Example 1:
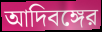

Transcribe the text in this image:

আদিবঙ্গের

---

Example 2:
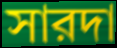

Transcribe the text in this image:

সারদা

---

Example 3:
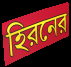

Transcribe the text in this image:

হিরনের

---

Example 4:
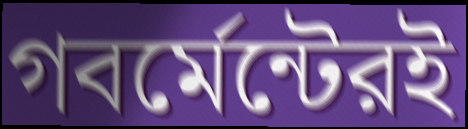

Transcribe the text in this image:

গবর্মেন্টেরই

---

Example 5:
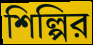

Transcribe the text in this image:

শিল্পির